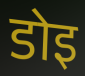
डोइ